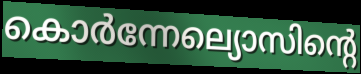
കൊർന്നേല്യൊസിന്റെ